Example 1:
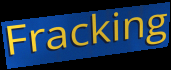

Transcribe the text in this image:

Fracking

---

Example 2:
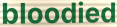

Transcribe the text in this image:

bloodied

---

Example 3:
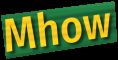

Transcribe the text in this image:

Mhow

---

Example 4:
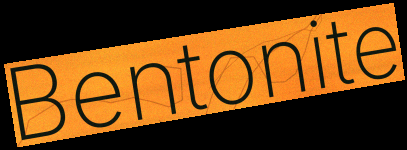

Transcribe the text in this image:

Bentonite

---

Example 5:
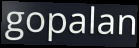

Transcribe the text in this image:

gopalan